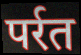
पर्रत